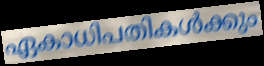
ഏകാധിപതികൾക്കും